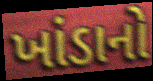
ખાંડાનો